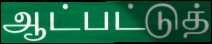
ஆட்பட்டுத்